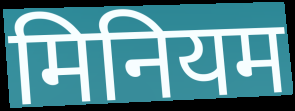
मिनियम